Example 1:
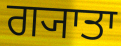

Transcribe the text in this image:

ਗ੍ਯਾਤਾ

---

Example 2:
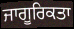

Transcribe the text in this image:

ਜਾਗੂਰਿਕਤਾ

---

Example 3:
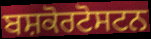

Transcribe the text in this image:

ਬਸ਼ਕੋਰਟੋਸਟਨ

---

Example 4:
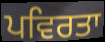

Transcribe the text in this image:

ਪਵਿਰਤਾ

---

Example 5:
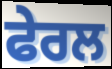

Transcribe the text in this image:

ਫੇਰਲ